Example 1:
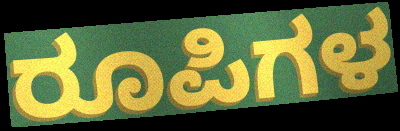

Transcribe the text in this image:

ರೂಪಿಗಳ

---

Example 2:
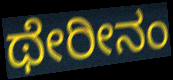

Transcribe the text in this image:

ಥೇರೀನಂ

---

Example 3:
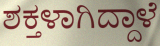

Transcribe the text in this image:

ಶಕ್ತಳಾಗಿದ್ದಾಳೆ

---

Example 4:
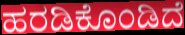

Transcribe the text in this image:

ಹರಡಿಕೊಂಡಿದೆ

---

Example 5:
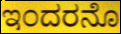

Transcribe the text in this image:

ಇಂದರನೊ